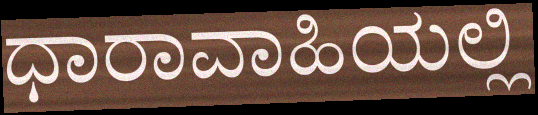
ಧಾರಾವಾಹಿಯಲ್ಲಿ